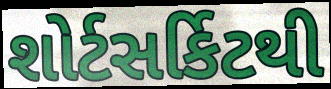
શોર્ટસર્કિટથી